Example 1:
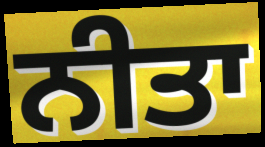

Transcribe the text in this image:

ਨੀਤਾ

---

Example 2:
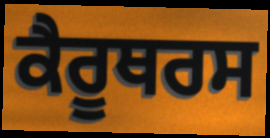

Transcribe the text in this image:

ਕੈਰੂਥਰਸ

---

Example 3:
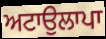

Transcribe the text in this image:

ਅਟਾਉਲਾਪਾ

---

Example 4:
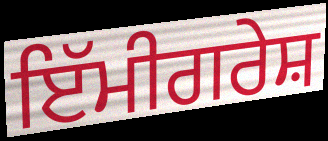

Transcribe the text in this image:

ਇੱਮੀਗਰੇਸ਼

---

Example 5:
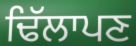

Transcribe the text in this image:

ਢਿੱਲਾਪਣ